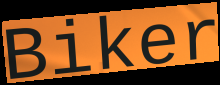
Biker